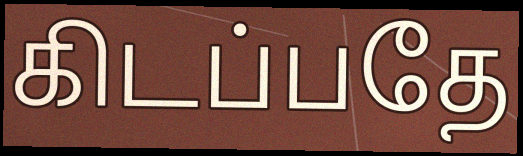
கிடப்பதே